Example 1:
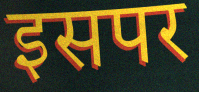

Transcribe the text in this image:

इसपर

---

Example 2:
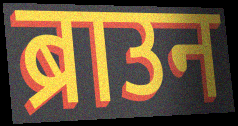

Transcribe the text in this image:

ब्राउन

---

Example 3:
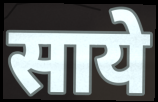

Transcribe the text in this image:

साये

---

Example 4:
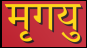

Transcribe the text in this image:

मृगयु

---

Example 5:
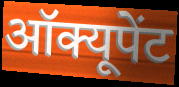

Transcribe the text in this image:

ऑक्यूपेंट